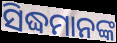
ସିଦ୍ଧମାନଙ୍କ